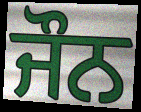
ਜੌਨ